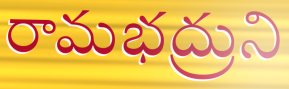
రామభద్రుని